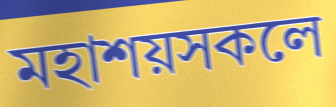
মহাশয়সকলে